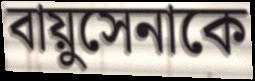
বায়ুসেনাকে